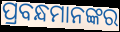
ପ୍ରବନ୍ଧମାନଙ୍କର